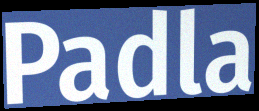
Padla